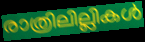
രാത്രിലില്ലികൾ